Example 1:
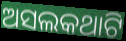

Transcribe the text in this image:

ଅସଲକଥାଟି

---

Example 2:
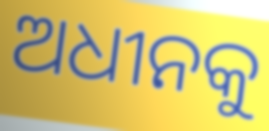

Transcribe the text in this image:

ଅଧୀନକୁ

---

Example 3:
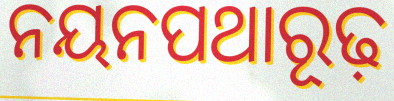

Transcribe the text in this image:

ନୟନପଥାରୂଢ଼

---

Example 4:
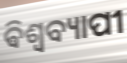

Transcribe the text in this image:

ଵିଶ୍ୱବ୍ୟାପୀ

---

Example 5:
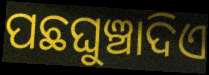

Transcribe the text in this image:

ପଛଘୁଞ୍ଚାଦିଏ